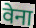
वेना